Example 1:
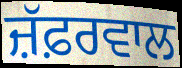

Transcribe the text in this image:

ਜ਼ੱਫ਼ਰਵਾਲ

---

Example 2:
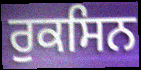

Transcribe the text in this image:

ਰੁਕਸਿਨ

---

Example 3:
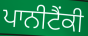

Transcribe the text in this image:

ਪਾਨੀਟੈਂਕੀ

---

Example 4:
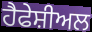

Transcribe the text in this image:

ਹੈਫੇਸ਼ੀਅਲ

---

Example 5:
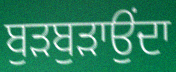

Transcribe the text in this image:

ਬੁੜਬੁੜਾਉਂਦਾ